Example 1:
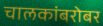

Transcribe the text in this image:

चालकांबरोबर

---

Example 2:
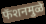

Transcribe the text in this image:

फॅशनमुळे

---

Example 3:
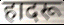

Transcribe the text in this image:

हादरू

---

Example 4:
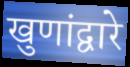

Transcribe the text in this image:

खुणांद्वारे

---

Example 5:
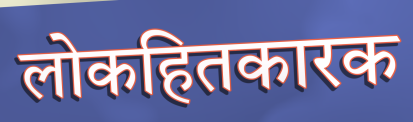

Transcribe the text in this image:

लोकहितकारक